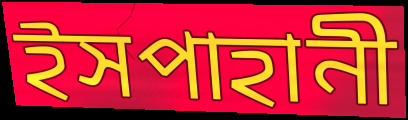
ইসপাহানী